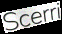
Scerri